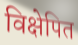
विक्षेपित